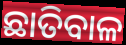
ଛାତିବାଳ